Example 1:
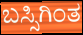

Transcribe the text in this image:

ಬಸ್ಸಿಗಿಂತ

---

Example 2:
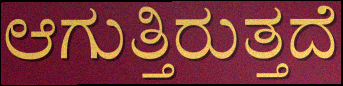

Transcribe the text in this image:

ಆಗುತ್ತಿರುತ್ತದೆ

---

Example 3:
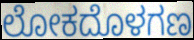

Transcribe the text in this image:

ಲೋಕದೊಳಗಣ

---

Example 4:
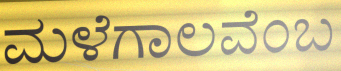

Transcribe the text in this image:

ಮಳೆಗಾಲವೆಂಬ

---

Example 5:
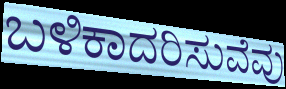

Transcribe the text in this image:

ಬಳಿಕಾದರಿಸುವೆವು